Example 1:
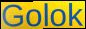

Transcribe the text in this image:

Golok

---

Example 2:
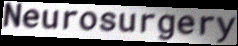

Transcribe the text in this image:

Neurosurgery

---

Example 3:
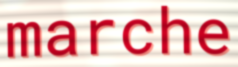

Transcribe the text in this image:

marche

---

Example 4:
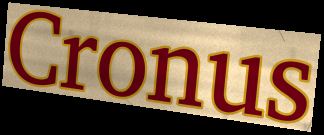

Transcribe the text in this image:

Cronus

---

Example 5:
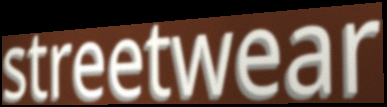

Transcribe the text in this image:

streetwear